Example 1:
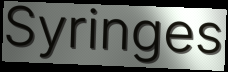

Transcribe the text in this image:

Syringes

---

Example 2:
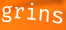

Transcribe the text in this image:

grins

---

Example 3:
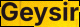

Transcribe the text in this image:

Geysir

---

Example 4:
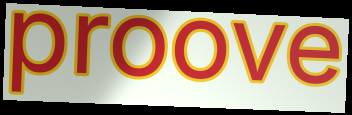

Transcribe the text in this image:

proove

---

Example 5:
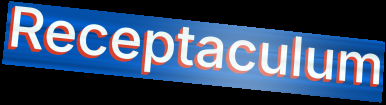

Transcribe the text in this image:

Receptaculum